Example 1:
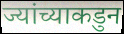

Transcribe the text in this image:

ज्यांच्याकडुन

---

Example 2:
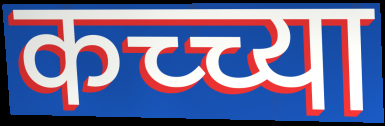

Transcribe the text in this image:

कच्च्या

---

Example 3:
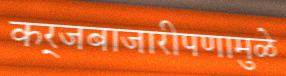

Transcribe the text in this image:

कर्जबाजारीपणामुळे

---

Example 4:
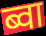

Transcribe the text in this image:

ब्वा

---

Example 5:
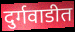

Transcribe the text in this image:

दुर्गवाडीत